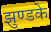
झुण्डके